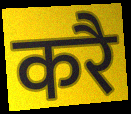
करै